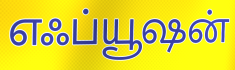
எஃப்யூஷன்